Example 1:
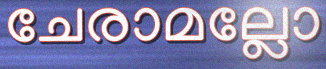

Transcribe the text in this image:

ചേരാമല്ലോ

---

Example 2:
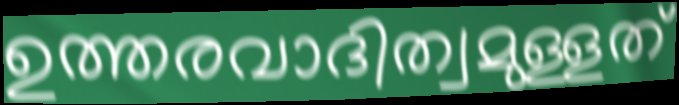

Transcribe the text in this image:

ഉത്തരവാദിത്വമുള്ളത്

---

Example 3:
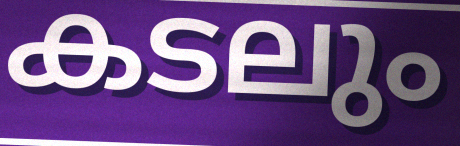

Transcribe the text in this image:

കടലും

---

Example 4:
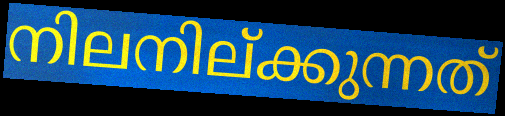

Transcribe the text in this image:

നിലനില്ക്കുന്നത്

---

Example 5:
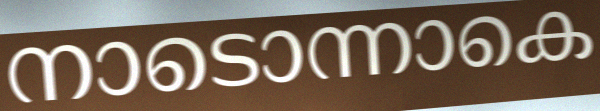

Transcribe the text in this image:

നാടൊന്നാകെ